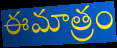
ఈమాత్రం